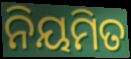
ନିୟମିତ